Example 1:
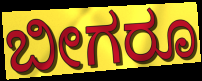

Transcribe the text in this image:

ಬೀಗರೂ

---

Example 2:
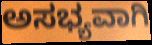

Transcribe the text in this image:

ಅಸಭ್ಯವಾಗಿ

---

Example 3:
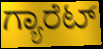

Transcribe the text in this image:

ಗ್ಯಾರೆಟ್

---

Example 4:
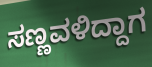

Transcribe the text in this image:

ಸಣ್ಣವಳಿದ್ದಾಗ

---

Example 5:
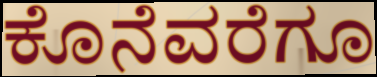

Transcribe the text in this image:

ಕೊನೆವರೆಗೂ